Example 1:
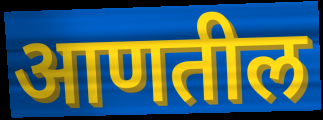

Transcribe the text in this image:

आणतील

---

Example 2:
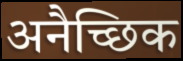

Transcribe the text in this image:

अनैच्छिक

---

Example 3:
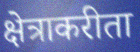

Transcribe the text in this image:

क्षेत्राकरीता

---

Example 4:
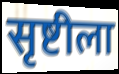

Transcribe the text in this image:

सृष्टीला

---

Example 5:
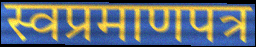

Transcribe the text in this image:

स्वप्रमाणपत्र